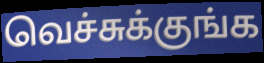
வெச்சுக்குங்க